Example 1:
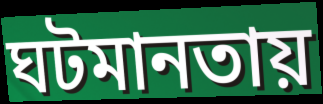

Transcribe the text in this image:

ঘটমানতায়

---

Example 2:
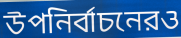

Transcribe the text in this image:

উপনির্বাচনেরও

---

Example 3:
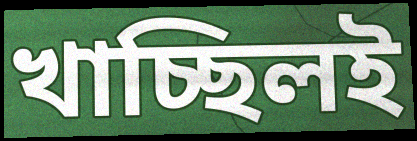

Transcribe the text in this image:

খাচ্ছিলই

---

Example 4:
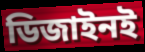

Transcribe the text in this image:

ডিজাইনই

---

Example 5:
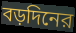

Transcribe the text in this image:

বড়দিনের